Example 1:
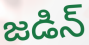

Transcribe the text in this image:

జడిన్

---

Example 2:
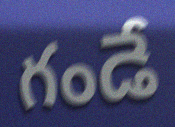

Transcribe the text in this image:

గండే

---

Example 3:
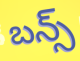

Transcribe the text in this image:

బన్స్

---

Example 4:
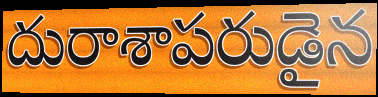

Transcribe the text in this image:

దురాశాపరుడైన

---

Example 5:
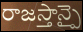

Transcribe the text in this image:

రాజస్తాన్పై